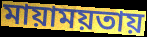
মায়াময়তায়